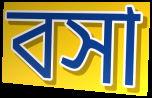
বসা